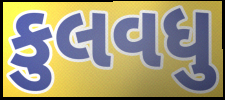
કુલવધુ